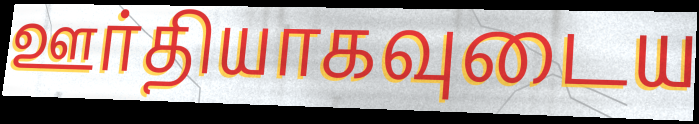
ஊர்தியாகவுடைய